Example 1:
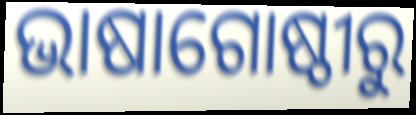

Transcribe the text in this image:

ଭାଷାଗୋଷ୍ଠୀରୁ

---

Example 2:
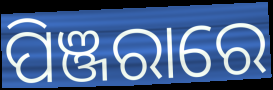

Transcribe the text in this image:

ପିଞ୍ଜରାରେ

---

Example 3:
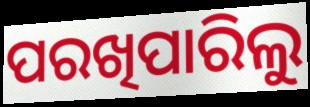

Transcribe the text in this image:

ପରଖିପାରିଲୁ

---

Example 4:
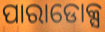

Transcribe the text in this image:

ପାରାଡୋକ୍ସ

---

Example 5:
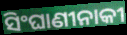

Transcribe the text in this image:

ସିଂଘାଣୀନାକୀ